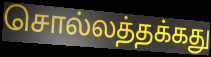
சொல்லத்தக்கது